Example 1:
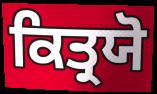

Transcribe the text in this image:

ਕਿਤ੍ਰਯੋ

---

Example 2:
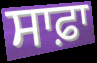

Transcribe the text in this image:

ਸਾਫ਼ਾ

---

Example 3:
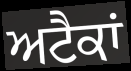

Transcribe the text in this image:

ਅਟੈਕਾਂ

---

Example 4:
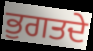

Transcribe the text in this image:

ਭੁਗਤਦੇ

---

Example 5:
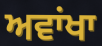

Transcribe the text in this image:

ਅਵਾਂਖਾ